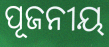
ପୂଜନୀୟ